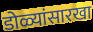
डोळ्यांसारखा